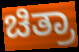
ಚಿತ್ರಾ